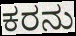
ಕರನು